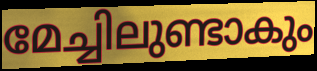
മേച്ചിലുണ്ടാകും